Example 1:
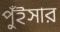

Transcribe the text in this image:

পুঁইসার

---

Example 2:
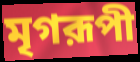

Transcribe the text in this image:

মৃগরূপী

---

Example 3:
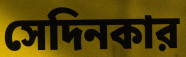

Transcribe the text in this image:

সেদিনকার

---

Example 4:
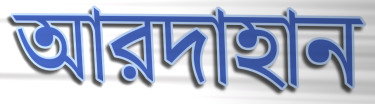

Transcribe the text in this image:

আরদাহান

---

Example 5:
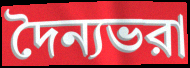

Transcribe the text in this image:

দৈন্যভরা